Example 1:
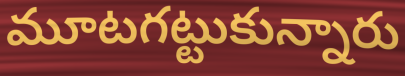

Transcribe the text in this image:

మూటగట్టుకున్నారు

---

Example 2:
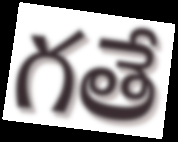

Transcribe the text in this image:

గతే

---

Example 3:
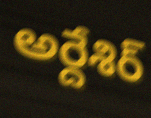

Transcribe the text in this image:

అర్దేశిర్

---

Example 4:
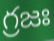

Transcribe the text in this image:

గ్రజః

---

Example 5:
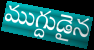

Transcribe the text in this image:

ముగ్దుడైన